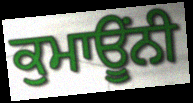
ਕੁਮਾਊਂਨੀ